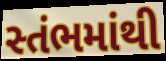
સ્તંભમાંથી